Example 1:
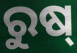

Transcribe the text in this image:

ରୁଷ୍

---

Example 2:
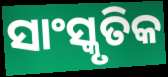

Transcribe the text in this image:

ସାଂସ୍କୃତିକ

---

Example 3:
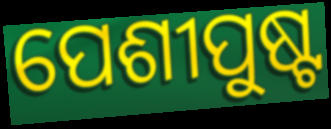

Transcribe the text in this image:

ପେଶୀପୁଷ୍ଟ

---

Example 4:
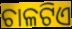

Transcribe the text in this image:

ଚାଳଟିଏ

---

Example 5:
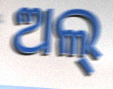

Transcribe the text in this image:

ଅଲ୍